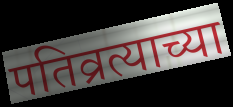
पतिव्रत्याच्या